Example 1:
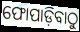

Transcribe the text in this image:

ଫୋପାଡ଼ିବାଠୁ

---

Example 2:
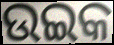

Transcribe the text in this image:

ଉଇକ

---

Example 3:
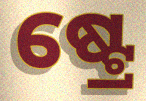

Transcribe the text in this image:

ଷ୍ଟ୍ରେ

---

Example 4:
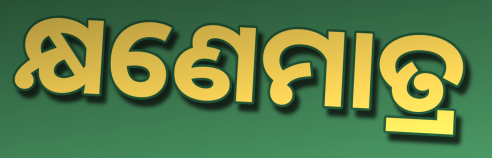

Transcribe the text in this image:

କ୍ଷଣେମାତ୍ର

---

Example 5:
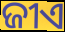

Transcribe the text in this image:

ଜୀଏ